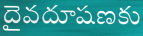
దైవదూషణకు